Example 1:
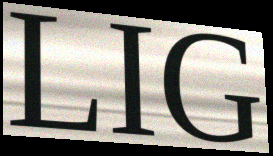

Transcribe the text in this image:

LIG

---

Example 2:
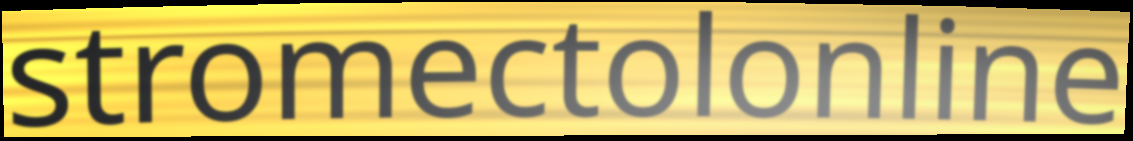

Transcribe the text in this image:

stromectolonline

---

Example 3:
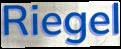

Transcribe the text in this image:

Riegel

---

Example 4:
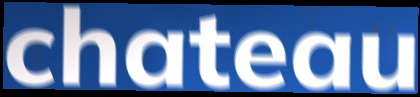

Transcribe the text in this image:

chateau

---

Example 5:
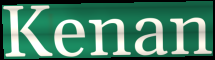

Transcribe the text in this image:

Kenan